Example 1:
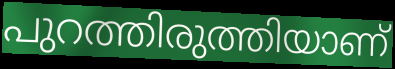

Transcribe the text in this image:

പുറത്തിരുത്തിയാണ്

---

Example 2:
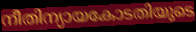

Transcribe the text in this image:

നീതിന്യായകോടതിയുടെ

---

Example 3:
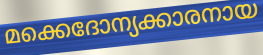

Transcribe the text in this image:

മക്കെദോന്യക്കാരനായ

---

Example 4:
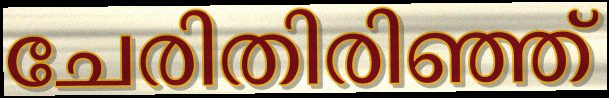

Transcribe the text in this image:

ചേരിതിരിഞ്ഞ്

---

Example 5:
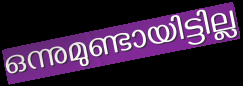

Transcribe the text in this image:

ഒന്നുമുണ്ടായിട്ടില്ല